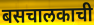
बसचालकाची